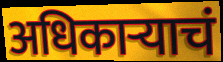
अधिकाऱ्याचं